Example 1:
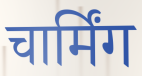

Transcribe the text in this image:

चार्मिंग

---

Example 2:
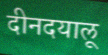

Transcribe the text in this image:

दीनदयालू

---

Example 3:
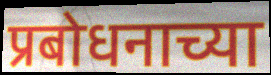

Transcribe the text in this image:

प्रबोधनाच्या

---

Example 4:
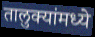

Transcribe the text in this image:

तालुक्यांमध्ये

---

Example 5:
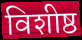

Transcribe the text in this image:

विशीष्ठ